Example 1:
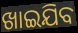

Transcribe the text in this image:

ଖାଇଯିବ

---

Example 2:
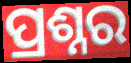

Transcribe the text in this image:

ପ୍ରଶ୍ନର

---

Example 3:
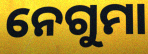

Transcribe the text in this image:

ନେଗୁମା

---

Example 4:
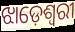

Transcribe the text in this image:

ଝାଡ଼େଶ୍ୱରୀ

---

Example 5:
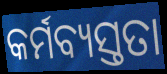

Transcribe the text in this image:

କର୍ମବ୍ୟସ୍ତତା